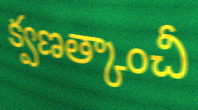
క్వణత్కాంచీ